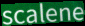
scalene